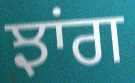
ਝਾਂਗ